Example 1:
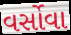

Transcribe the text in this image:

વર્સોવા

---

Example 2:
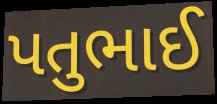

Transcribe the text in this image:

પતુભાઈ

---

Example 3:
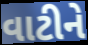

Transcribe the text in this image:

વાટીને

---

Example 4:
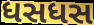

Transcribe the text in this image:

ધસધસ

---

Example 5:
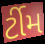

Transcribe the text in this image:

ર્ટીમ